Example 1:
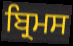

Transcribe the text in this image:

ਬ੍ਰਿਮਸ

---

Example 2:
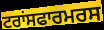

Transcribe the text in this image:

ਟਰਾਂਸਫਾਰਮਰਸ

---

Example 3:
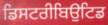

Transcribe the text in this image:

ਡਿਸਟਰੀਬਿਉਟਿਡ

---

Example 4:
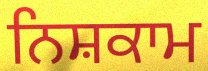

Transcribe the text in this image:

ਨਿਸ਼ਕਾਮ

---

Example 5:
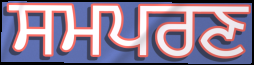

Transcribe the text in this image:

ਸਮਪਰਣ